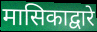
मासिकाद्वारे